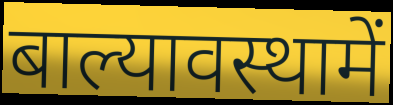
बाल्यावस्थामें